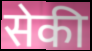
सेकी